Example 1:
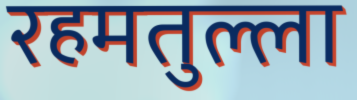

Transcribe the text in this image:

रहमतुल्ला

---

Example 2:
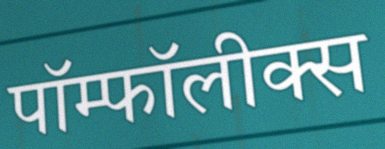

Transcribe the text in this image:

पॉम्फॉलीक्स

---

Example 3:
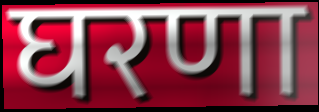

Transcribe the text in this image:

घरणा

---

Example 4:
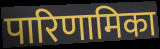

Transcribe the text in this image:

पारिणामिका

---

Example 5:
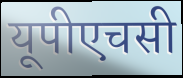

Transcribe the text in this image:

यूपीएचसी